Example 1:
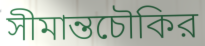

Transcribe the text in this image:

সীমান্তচৌকির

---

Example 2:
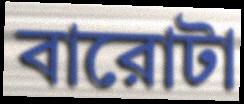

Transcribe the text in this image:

বারোটা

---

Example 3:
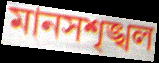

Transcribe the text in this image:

মানসশৃঙ্খল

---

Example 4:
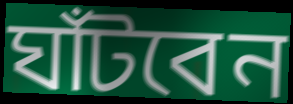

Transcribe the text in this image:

ঘাঁটবেন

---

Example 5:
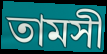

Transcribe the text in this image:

তামসী